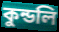
কুন্ডলি